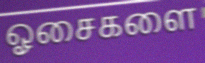
ஓசைகளை